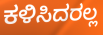
ಕಳಿಸಿದರಲ್ಲ